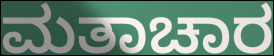
ಮತಾಚಾರ